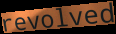
revolved